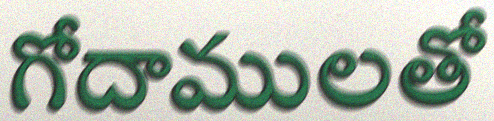
గోదాములతో